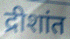
द्रीशांत